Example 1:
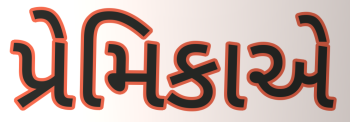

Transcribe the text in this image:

પ્રેમિકાએ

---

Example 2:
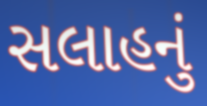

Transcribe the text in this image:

સલાહનું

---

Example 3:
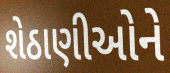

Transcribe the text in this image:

શેઠાણીઓને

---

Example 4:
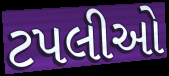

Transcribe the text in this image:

ટપલીઓ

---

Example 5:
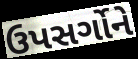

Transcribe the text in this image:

ઉપસર્ગોને